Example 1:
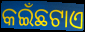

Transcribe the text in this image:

କଇଁଛଟାଏ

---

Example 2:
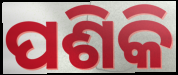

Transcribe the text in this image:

ପଶିକି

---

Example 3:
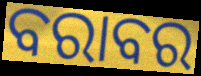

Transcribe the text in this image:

ବରାବର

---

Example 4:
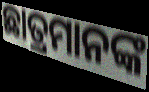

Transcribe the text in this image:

ଛାତ୍ରମାନଙ୍କ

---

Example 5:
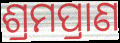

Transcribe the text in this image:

ଶ୍ରମପ୍ରାଣ